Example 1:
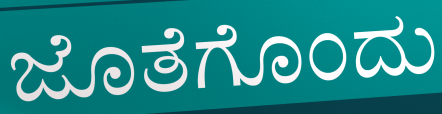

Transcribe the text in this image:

ಜೊತೆಗೊಂದು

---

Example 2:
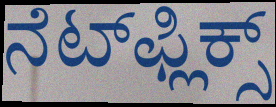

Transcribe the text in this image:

ನೆಟ್‌ಫ್ಲಿಕ್ಸ್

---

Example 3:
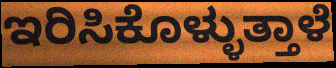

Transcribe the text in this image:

ಇರಿಸಿಕೊಳ್ಳುತ್ತಾಳೆ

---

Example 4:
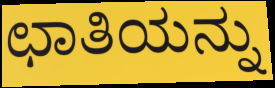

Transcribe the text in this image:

ಛಾತಿಯನ್ನು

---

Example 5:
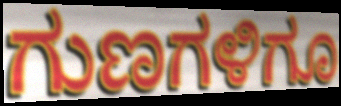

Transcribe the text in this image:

ಗುಣಗಳಿಗೂ